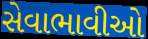
સેવાભાવીઓ